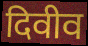
दिवीव